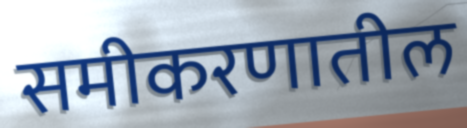
समीकरणातील